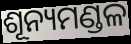
ଶୂନ୍ୟମଣ୍ଡଳ